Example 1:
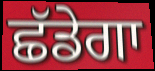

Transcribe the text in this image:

ਛੱਡੇਗਾ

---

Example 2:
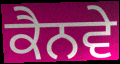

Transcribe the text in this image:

ਕੈਨਵੇ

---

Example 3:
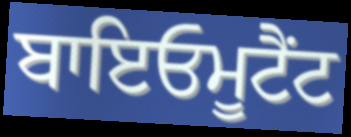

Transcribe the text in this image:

ਬਾਇਓਮੂਟੈਂਟ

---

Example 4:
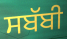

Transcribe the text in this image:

ਸਬੱਬੀ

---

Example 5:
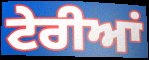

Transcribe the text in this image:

ਟੇਰੀਆਂ